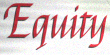
Equity